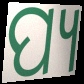
ପ୍ୟ